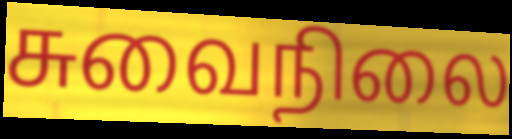
சுவைநிலை